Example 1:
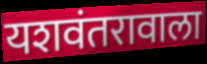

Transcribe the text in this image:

यशवंतरावाला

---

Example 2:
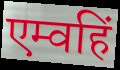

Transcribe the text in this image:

एम्वहिं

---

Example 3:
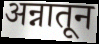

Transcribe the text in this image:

अन्नातून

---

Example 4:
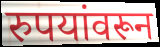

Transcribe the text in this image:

रुपयांवरून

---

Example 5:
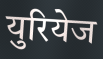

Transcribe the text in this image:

युरियेज